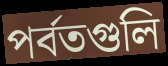
পর্বতগুলি